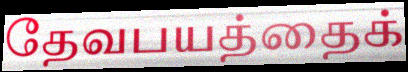
தேவபயத்தைக்